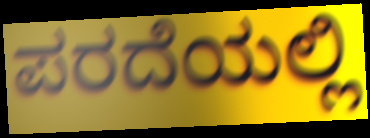
ಪರದೆಯಲ್ಲಿ